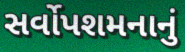
સર્વોપશમનાનું